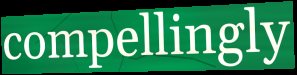
compellingly